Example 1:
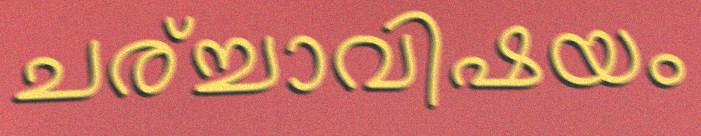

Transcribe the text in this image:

ചര്ച്ചാവിഷയം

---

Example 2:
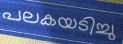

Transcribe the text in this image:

പലകയടിച്ചു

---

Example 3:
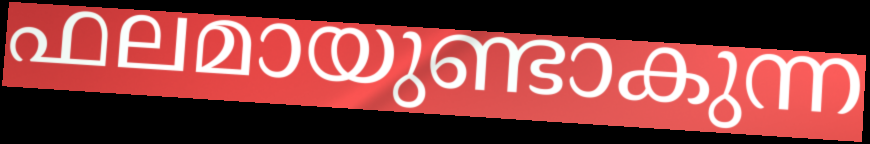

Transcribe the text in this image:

ഫലമായുണ്ടാകുന്ന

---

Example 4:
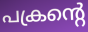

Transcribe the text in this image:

പക്രന്റെ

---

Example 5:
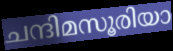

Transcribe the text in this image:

ചന്ദിമസൂരിയാ